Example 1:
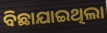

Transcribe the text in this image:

ବିଛାଯାଇଥିଲା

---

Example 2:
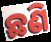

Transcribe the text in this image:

ଛଣି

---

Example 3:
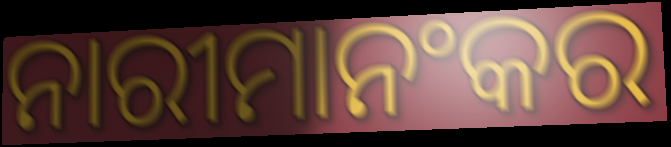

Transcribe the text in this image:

ନାରୀମାନଂକର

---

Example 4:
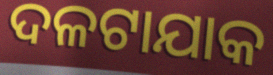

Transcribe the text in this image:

ଦଳଟାଯାକ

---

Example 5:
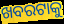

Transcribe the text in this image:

ଖବରଟାକୁ